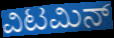
ವಿಟಮಿನ್